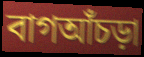
বাগআঁচড়া